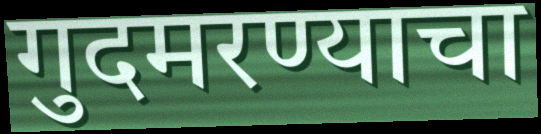
गुदमरण्याचा